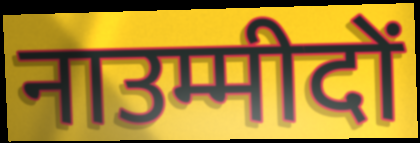
नाउम्मीदों